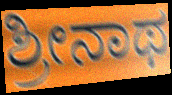
ಶ್ರೀನಾಥ